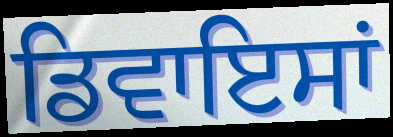
ਡਿਵਾਇਸਾਂ